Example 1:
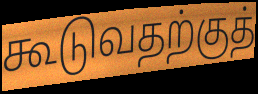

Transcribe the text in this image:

கூடுவதற்குத்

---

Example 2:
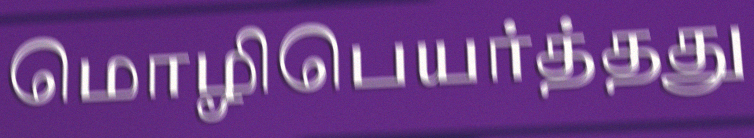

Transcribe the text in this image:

மொழிபெயர்த்தது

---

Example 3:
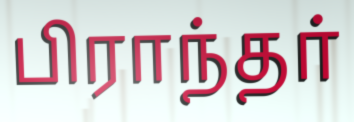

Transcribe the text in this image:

பிராந்தர்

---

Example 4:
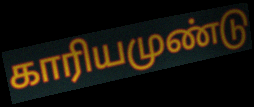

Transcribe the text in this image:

காரியமுண்டு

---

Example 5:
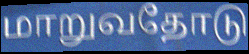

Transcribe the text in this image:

மாறுவதோடு